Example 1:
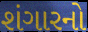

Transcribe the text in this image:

શંગારનો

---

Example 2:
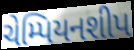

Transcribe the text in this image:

ચેમ્પિયનશીપ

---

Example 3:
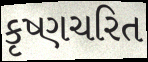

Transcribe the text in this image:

કૃષ્ણચરિત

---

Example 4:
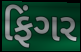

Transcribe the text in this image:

ફિંગર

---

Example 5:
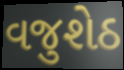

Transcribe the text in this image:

વજુશેઠ